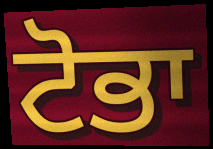
ਟੋਭਾ